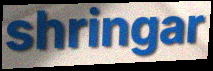
shringar